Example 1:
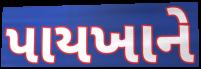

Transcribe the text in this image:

પાયખાને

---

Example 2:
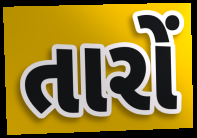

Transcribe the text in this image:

તારોં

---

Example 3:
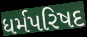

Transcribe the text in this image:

ધર્મપરિષદ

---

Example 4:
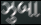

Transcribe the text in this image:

ઝુબા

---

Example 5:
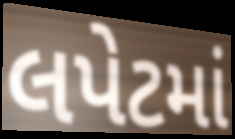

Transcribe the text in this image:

લપેટમાં